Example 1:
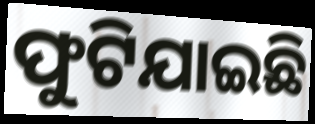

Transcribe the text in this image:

ଫୁଟିଯାଇଛି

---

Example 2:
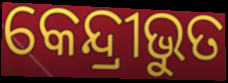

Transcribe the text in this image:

କେନ୍ଦ୍ରୀଭୁତ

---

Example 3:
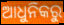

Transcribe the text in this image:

ଆଧୁନିକରୁ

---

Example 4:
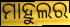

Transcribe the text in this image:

ମାହୁଲର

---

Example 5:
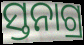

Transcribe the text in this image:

ସ୍ତନାଗ୍ର